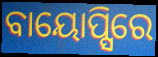
ବାୟୋପ୍ସିରେ